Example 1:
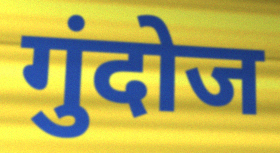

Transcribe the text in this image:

गुंदोज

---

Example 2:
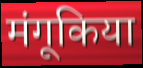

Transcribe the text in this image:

मंगूकिया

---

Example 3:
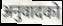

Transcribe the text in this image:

अनुवादको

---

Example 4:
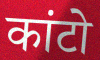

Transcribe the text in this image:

कांटो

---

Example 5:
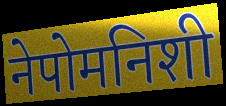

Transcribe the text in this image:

नेपोमनिशी